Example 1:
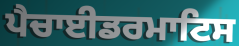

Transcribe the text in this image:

ਪੈਚਾਈਡਰਮਾਟਿਸ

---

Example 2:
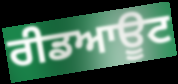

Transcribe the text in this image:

ਰੀਡਆਊਟ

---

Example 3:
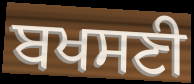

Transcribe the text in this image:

ਬਖਸਣੀ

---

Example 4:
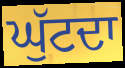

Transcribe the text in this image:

ਘੁੱਟਦਾ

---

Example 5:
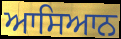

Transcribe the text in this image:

ਆਸਿਆਨ